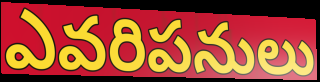
ఎవరిపనులు